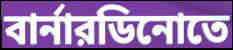
বার্নারডিনোতে